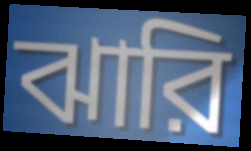
ঝারি